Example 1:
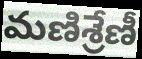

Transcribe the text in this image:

మణిశ్రేణీ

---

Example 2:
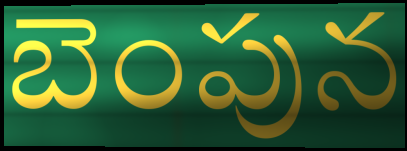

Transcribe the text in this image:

బెంపున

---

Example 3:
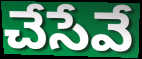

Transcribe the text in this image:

చేసేవే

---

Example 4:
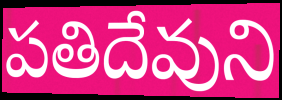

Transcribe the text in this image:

పతిదేవుని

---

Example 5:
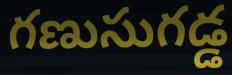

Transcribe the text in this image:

గణుసుగడ్డ